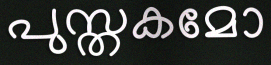
പുസ്തകമോ